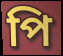
পি